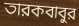
তারকবাবুর